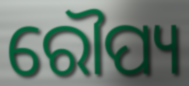
ରୌପ୍ୟ